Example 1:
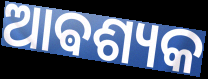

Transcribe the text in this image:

ଆଵଶ୍ୟକ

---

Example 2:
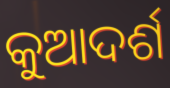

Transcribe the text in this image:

କୁଆଦର୍ଶ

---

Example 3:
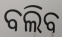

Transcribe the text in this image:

ବଲିବ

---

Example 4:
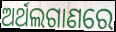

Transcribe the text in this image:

ଅର୍ଥଲଗାଣରେ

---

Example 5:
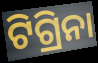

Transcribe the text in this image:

ଟିଗ୍ରିନା